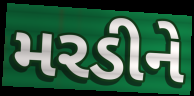
મરડીને